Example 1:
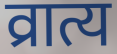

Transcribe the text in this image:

व्रात्य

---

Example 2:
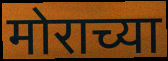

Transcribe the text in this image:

मोराच्या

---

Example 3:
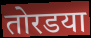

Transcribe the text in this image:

तोरडया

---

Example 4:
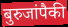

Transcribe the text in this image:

बुरुजांपैकी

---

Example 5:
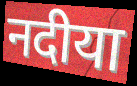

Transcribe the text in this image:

नदीया